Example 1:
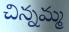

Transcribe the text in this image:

చిన్నమ్మ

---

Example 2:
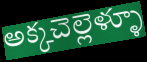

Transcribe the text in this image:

అక్కచెల్లెళ్ళూ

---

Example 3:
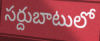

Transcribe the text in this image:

సర్దుబాటులో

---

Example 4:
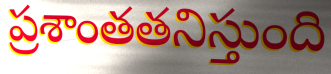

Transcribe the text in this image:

ప్రశాంతతనిస్తుంది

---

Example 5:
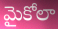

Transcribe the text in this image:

మైకోలా